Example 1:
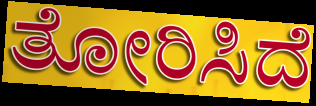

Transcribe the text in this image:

ತೋರಿಸಿದೆ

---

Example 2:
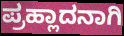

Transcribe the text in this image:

ಪ್ರಹ್ಲಾದನಾಗಿ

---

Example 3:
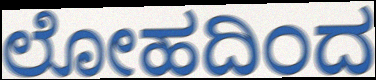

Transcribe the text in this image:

ಲೋಹದಿಂದ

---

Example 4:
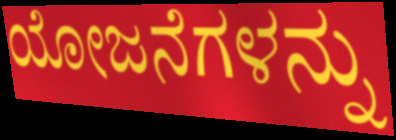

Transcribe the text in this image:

ಯೋಜನೆಗಳನ್ನು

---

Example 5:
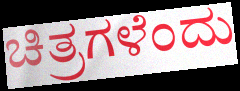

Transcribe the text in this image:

ಚಿತ್ರಗಳೆಂದು